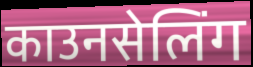
काउनसेलिंग